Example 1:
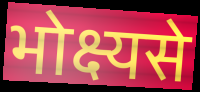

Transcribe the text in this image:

भोक्ष्यसे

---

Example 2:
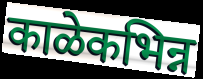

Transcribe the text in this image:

काळेकभिन्न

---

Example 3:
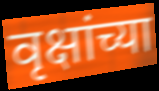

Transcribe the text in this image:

वृक्षांच्या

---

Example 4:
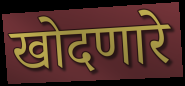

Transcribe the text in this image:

खोदणारे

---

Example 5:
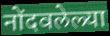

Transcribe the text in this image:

नोंदवलेल्या